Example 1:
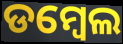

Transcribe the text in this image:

ଡମ୍ୱେଲ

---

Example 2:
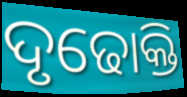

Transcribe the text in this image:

ଦୃଢୋକ୍ତି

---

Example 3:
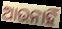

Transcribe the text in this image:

ଆଉନାହିଁ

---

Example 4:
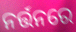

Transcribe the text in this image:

ନର୍ତ୍ତନରେ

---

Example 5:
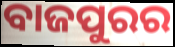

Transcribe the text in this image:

ବାଜପୁରର